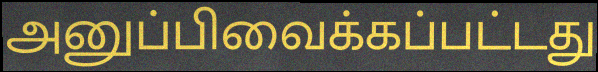
அனுப்பிவைக்கப்பட்டது